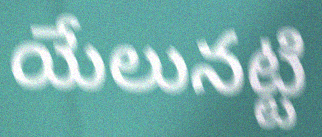
యేలునట్టి